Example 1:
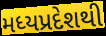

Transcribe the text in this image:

મધ્યપ્રદેશથી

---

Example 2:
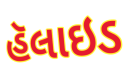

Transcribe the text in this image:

હૅલાઇડ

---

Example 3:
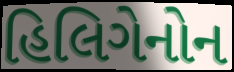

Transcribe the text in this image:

હિલિગેનોન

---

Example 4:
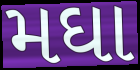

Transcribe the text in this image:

મઘા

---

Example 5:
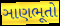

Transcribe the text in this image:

ઞાણભૂતો